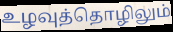
உழவுத்தொழிலும்